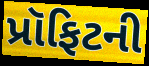
પ્રૉફિટની